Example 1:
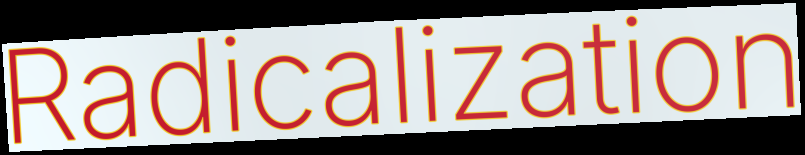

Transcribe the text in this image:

Radicalization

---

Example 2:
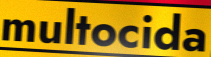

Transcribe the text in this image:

multocida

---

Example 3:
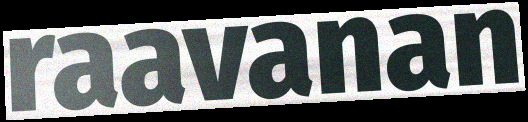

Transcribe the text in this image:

raavanan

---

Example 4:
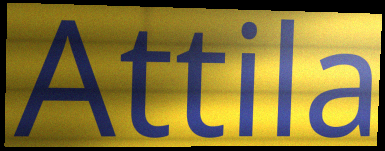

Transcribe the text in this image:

Attila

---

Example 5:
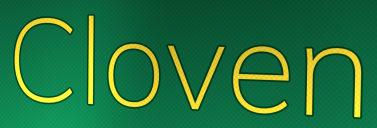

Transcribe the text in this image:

Cloven